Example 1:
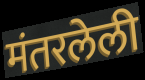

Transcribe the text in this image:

मंतरलेली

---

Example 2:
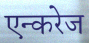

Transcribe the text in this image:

एन्करेज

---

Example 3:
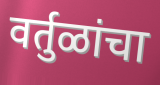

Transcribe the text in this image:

वर्तुळांचा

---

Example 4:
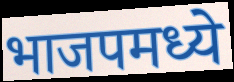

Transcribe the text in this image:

भाजपमध्ये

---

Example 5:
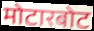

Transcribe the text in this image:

मोटारबोट